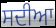
ਸਦੀਆ